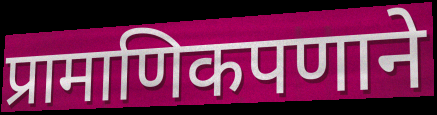
प्रामाणिकपणाने